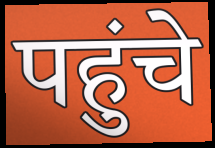
पहुंचे